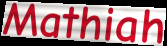
Mathiah